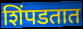
शिंपडतात